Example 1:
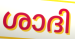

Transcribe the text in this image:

ശാദി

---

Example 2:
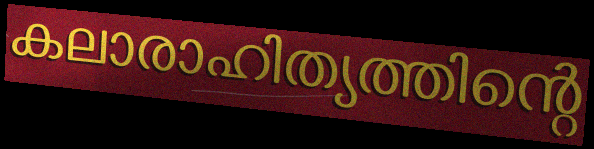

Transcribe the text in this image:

കലാരാഹിത്യത്തിന്റെ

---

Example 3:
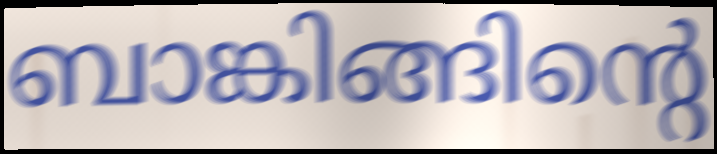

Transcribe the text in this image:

ബാങ്കിങ്ങിന്റെ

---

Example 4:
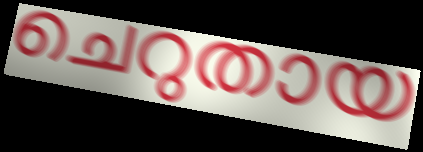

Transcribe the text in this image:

ചെറുതായ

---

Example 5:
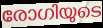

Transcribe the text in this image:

രോഗിയുടെ